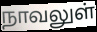
நாவலுள்